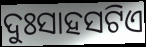
ଦୁଃସାହସଟିଏ